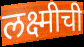
लक्ष्मीची